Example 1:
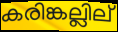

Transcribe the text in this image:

കരിങ്കല്ലില്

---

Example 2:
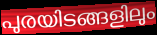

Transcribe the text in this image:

പുരയിടങ്ങളിലും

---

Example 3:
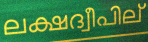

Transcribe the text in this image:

ലക്ഷദ്വീപില്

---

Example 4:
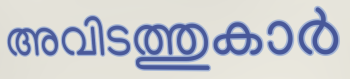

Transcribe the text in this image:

അവിടത്തുകാർ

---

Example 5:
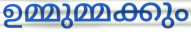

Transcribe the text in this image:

ഉമ്മുമ്മക്കും